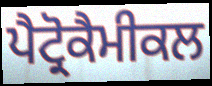
ਪੈਟ੍ਰੋਕੈਮੀਕਲ